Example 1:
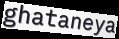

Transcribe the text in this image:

ghataneya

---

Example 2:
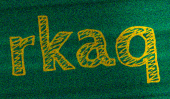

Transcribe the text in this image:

rkaq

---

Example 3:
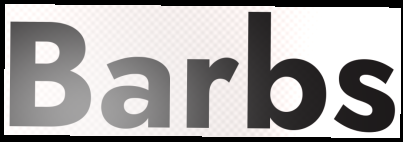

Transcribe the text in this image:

Barbs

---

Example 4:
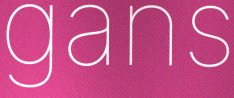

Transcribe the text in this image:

gans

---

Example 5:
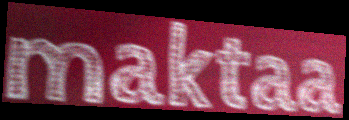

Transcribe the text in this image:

maktaa